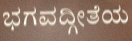
ಭಗವದ್ಗೀತೆಯ